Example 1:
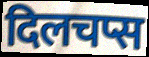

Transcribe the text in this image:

दिलचप्स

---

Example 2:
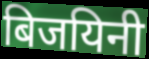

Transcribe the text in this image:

बिजयिनी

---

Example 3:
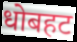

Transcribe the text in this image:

धोबहट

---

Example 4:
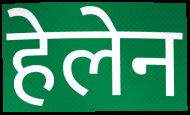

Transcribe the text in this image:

हेलेन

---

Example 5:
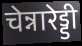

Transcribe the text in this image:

चेन्नारेड्डी